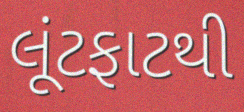
લૂંટફાટથી